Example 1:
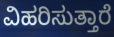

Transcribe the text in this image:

ವಿಹರಿಸುತ್ತಾರೆ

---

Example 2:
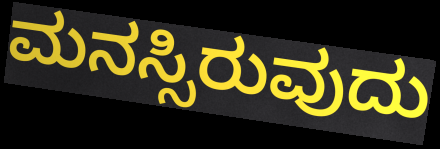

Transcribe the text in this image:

ಮನಸ್ಸಿರುವುದು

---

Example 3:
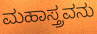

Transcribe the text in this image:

ಮಹಾಸ್ತ್ರವನು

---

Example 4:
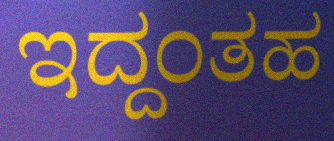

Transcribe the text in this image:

ಇದ್ದಂತಹ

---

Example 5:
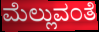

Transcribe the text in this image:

ಮೆಲ್ಲುವಂತೆ